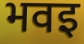
भवइ